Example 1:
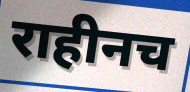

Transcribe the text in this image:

राहीनच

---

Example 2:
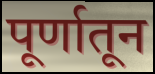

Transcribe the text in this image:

पूर्णातून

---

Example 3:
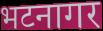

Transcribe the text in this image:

भटनागर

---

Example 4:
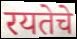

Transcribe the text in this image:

रयतेचे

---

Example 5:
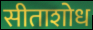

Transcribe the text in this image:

सीताशोध